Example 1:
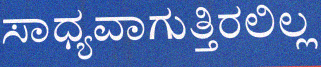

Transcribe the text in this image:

ಸಾಧ್ಯವಾಗುತ್ತಿರಲಿಲ್ಲ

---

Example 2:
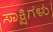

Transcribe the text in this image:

ಸಾಕ್ಷಿಗಳು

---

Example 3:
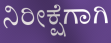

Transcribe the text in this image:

ನಿರೀಕ್ಷೆಗಾಗಿ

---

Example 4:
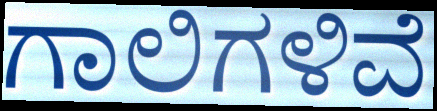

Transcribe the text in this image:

ಗಾಲಿಗಳಿವೆ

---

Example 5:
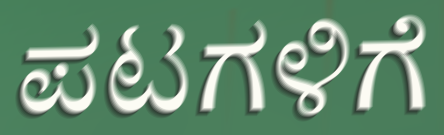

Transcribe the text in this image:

ಪಟಗಳಿಗೆ